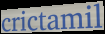
crictamil